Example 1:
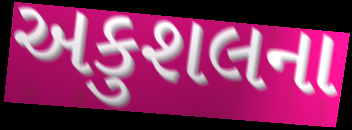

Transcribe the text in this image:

અકુશલના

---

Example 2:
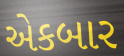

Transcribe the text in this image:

એકબાર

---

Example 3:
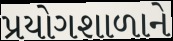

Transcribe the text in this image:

પ્રયોગશાળાને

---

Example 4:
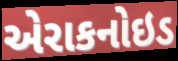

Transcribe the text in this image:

એરાકનોઇડ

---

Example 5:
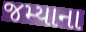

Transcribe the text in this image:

જમ્યાના